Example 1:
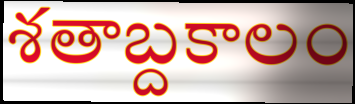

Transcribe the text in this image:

శతాబ్దకాలం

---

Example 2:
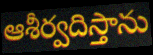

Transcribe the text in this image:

ఆశీర్వదిస్తాను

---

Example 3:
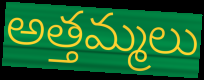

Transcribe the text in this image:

అత్తమ్మలు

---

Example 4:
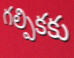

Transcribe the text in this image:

గల్పికకు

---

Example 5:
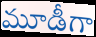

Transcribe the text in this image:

మూడీగా